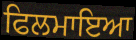
ਫਿਲਮਾਇਆ